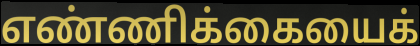
எண்ணிக்கையைக்